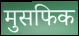
मुसफिक